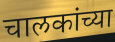
चालकांच्या